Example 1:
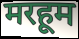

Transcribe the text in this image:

मरहूम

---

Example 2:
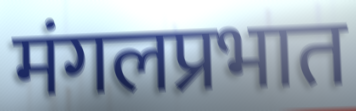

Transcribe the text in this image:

मंगलप्रभात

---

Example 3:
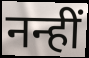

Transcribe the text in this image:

नन्‍हीं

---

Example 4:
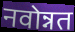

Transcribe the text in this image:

नवोन्नत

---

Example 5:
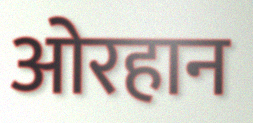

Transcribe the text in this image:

ओरहान